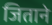
जिताने